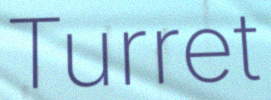
Turret